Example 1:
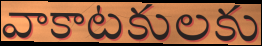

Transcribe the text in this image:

వాకాటకులకు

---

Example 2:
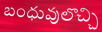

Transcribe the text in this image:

బంధువులొచ్చి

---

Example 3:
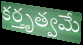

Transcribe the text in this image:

కర్తృత్వమే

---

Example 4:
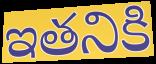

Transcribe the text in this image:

ఇతనికి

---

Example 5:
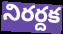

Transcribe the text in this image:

నిరర్దక